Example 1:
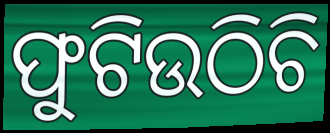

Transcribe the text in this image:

ଫୁଟିଉଠିଚି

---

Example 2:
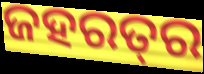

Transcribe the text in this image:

ଜହରତ୍‌ର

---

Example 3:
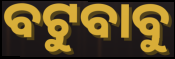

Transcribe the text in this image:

ବଟୁବାବୁ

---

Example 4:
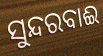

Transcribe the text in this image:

ସୁନ୍ଦରବାଈ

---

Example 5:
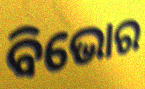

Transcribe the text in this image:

ବିଭୋର